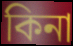
কিনা